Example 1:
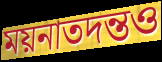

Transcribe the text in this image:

ময়নাতদন্তও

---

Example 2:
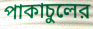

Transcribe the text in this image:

পাকাচুলের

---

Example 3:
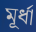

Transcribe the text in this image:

মূর্ধা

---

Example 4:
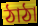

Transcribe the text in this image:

ঠাঠা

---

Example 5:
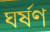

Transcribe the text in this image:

ঘর্ষণ